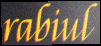
rabiul